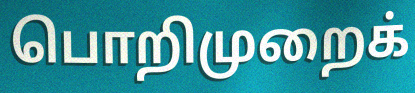
பொறிமுறைக்